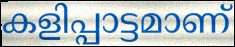
കളിപ്പാട്ടമാണ്